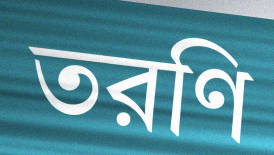
তরণি